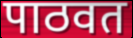
पाठवत